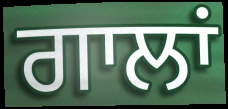
ਗਾਲਾਂ